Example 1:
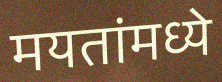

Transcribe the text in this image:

मयतांमध्ये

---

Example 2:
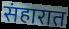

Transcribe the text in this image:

संहारात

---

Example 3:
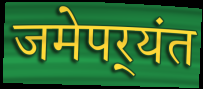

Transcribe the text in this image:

जमेपर्यंत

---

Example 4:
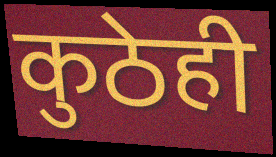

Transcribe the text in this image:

कुठेही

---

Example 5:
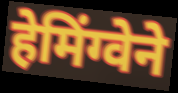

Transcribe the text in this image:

हेमिंग्वेने